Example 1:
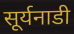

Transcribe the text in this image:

सूर्यनाडी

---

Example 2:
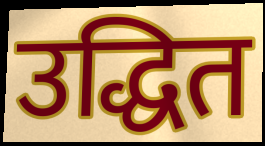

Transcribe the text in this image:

उद्धित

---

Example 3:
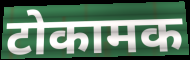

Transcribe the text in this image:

टोकामक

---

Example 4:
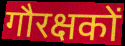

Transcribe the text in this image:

गौरक्षकों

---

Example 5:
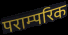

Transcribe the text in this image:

पराम्परिक